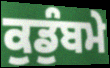
ਕੁਡੁੰਬਮੇ